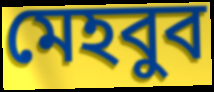
মেহবুব